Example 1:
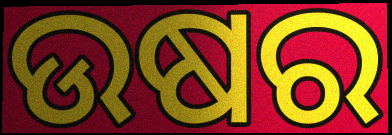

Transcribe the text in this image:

ଉଷର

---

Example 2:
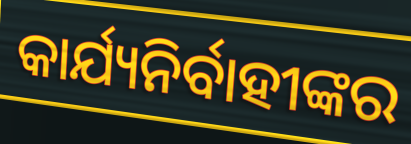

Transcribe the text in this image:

କାର୍ଯ୍ୟନିର୍ବାହୀଙ୍କର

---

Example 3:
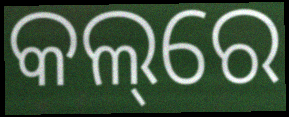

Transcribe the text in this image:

କଲ୍‌ରେ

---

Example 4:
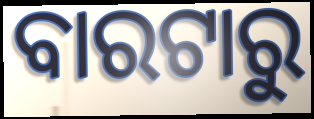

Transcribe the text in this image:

ବାରଟାରୁ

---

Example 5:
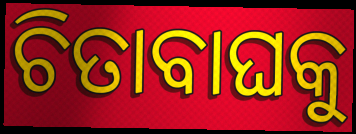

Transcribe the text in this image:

ଚିତାବାଘକୁ